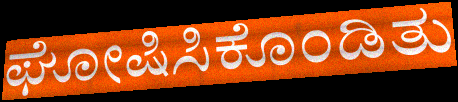
ಘೋಷಿಸಿಕೊಂಡಿತು